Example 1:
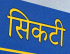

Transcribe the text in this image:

सिकटी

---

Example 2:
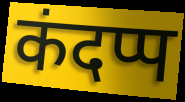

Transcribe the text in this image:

कंदप्प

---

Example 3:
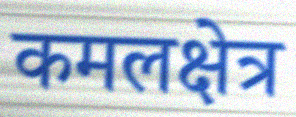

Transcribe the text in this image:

कमलक्षेत्र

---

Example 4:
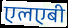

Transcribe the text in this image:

एलएबी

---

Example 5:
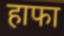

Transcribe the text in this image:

हाफा